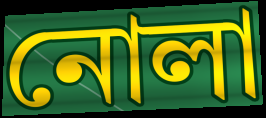
নোলা